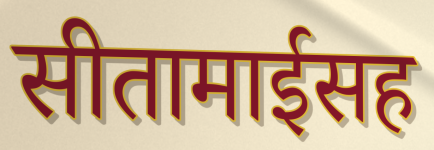
सीतामाईसह